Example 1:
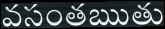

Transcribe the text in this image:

వసంతఋతు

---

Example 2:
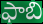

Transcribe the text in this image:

ఫాబి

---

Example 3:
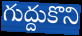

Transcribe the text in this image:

గుద్దుకొని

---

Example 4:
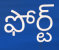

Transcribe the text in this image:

ఫోర్ట్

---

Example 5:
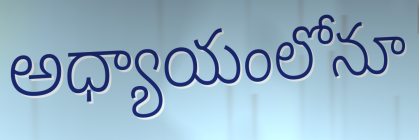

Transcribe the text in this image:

అధ్యాయంలోనూ